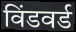
विंडवर्ड